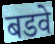
बडवे